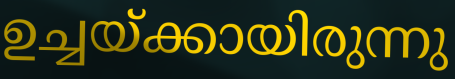
ഉച്ചയ്ക്കായിരുന്നു